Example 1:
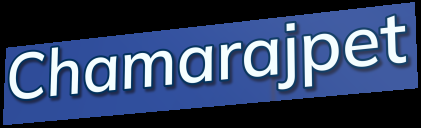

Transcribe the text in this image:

Chamarajpet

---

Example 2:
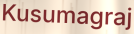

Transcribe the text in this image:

Kusumagraj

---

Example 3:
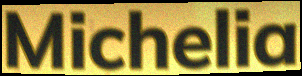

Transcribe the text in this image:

Michelia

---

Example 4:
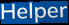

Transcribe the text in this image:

Helper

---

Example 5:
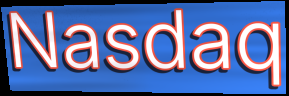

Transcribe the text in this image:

Nasdaq